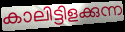
കാലിട്ടിളക്കുന്ന